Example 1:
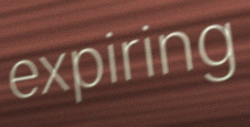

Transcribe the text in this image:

expiring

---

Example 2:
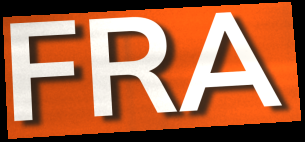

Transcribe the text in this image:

FRA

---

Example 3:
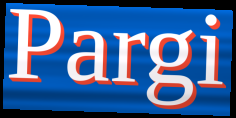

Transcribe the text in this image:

Pargi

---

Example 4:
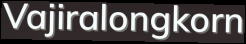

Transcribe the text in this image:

Vajiralongkorn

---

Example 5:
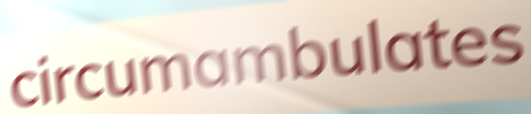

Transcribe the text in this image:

circumambulates